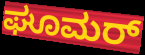
ಘೂಮರ್